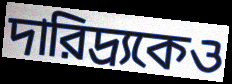
দারিদ্র্যকেও